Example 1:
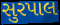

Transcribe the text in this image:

સુરપાલ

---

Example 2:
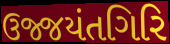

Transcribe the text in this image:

ઉજ્જયંતગિરિ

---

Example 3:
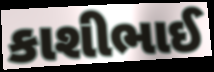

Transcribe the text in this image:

કાશીભાઈ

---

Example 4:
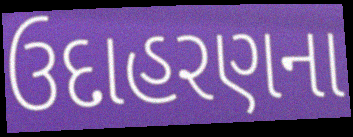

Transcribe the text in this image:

ઉદાહરણના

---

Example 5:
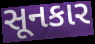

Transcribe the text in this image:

સૂનકાર